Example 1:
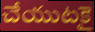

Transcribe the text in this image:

చేయుటకై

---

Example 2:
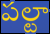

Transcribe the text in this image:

పల్టా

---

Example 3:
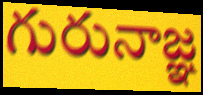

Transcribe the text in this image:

గురునాజ్ఞ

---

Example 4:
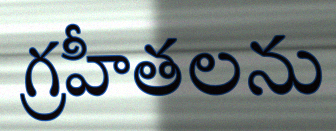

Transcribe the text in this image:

గ్రహీతలను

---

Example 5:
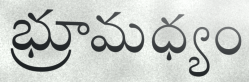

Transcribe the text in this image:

భ్రూమధ్యం